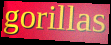
gorillas